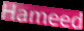
Hameed